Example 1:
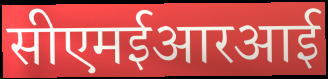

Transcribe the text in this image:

सीएमईआरआई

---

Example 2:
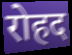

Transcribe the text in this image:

रोहद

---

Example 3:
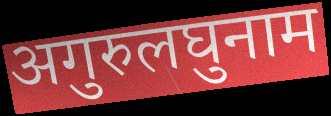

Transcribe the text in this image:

अगुरुलघुनाम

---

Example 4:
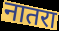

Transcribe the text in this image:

नातरा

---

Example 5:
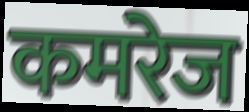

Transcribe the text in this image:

कमरेज